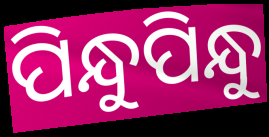
ପିନ୍ଧୁପିନ୍ଧୁ